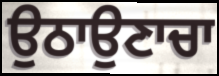
ਉਠਾਉਣਾਚਾ